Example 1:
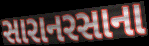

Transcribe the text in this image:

સારાનરસાના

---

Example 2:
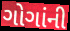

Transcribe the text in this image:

ગોગાંની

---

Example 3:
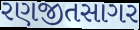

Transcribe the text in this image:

રણજીતસાગર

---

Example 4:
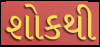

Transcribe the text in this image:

શોકથી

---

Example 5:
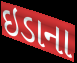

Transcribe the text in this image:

ઇડાના